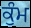
ਕੁੰਮ